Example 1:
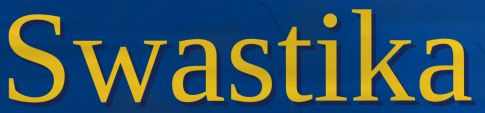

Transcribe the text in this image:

Swastika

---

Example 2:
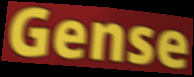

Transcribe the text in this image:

Gense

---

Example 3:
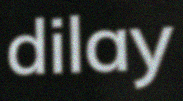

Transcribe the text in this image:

dilay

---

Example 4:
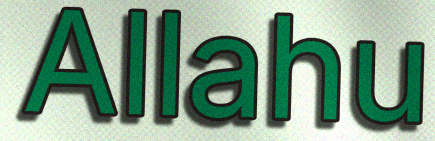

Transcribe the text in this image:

Allahu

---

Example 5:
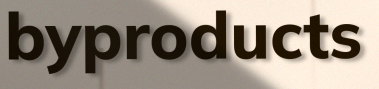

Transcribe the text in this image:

byproducts